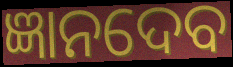
ଜ୍ଞାନଦେବ